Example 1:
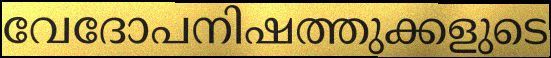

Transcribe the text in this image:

വേദോപനിഷത്തുക്കളുടെ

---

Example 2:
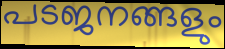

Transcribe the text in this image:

പടജനങ്ങളും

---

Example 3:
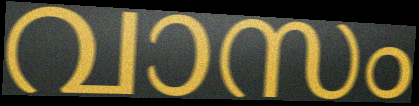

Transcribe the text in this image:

വാസം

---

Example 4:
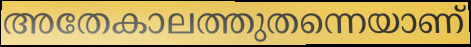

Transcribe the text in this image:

അതേകാലത്തുതന്നെയാണ്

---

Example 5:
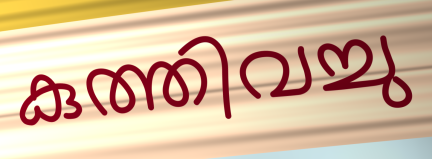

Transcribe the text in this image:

കുത്തിവച്ചു